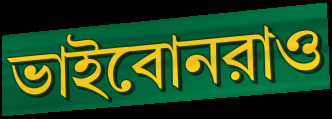
ভাইবোনরাও